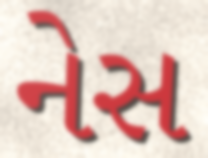
નેસ